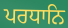
ਪਰਧਾਨਿ